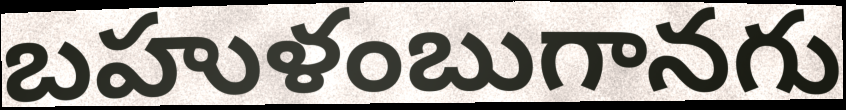
బహుళంబుగానగు